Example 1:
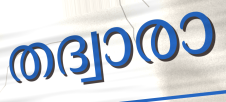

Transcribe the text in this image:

തദ്വാരാ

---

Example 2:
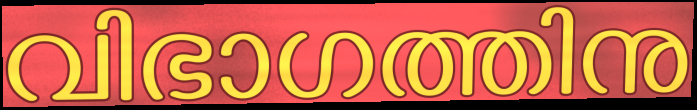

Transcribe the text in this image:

വിഭാഗത്തിനു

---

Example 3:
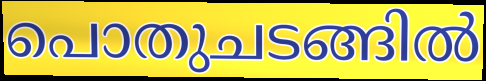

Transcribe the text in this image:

പൊതുചടങ്ങിൽ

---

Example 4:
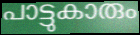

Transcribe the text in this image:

പാട്ടുകാരും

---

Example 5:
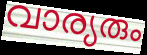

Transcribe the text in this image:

വാര്യരും